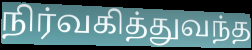
நிர்வகித்துவந்த